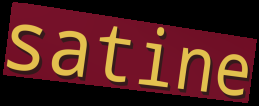
satine